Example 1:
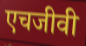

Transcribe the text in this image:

एचजीवी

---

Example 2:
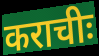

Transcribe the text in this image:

कराचीः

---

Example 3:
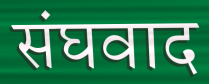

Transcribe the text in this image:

संघवाद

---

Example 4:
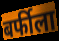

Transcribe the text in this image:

बर्फीला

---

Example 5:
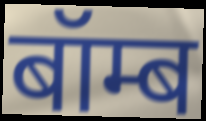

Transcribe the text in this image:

बॉम्ब